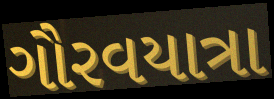
ગૌરવયાત્રા